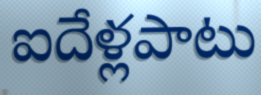
ఐదేళ్లపాటు